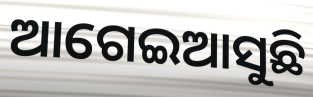
ଆଗେଇଆସୁଛି